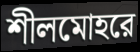
শীলমোহরে